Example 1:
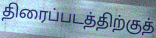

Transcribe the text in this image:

திரைப்படத்திற்குத்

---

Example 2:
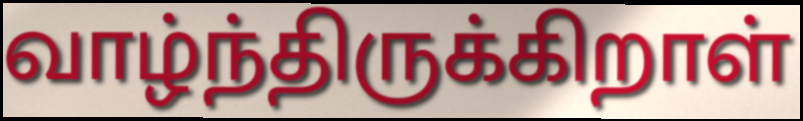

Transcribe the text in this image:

வாழ்ந்திருக்கிறாள்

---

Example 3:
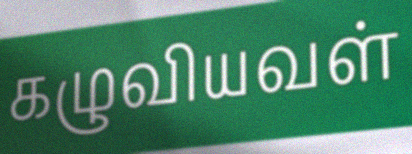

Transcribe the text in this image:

கழுவியவள்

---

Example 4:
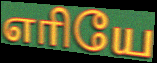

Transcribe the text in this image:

எரியே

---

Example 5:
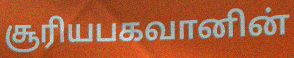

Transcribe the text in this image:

சூரியபகவானின்